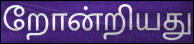
றோன்றியது